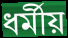
ধর্মীয়